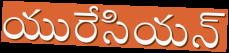
యురేసియన్